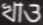
খাও